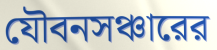
যৌবনসঞ্চারের